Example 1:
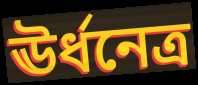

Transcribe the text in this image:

ঊর্ধনেত্র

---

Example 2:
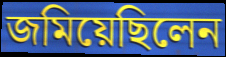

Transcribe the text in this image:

জমিয়েছিলেন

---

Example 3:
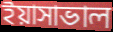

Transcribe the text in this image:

ইয়াসাভাল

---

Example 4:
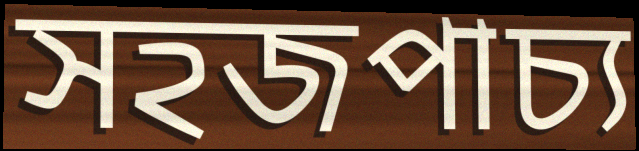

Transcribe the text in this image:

সহজপাচ্য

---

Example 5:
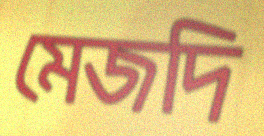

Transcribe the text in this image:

মেজদি